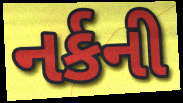
નર્કની